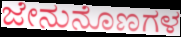
ಜೇನುನೊಣಗಳ